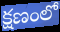
క్షణంలో